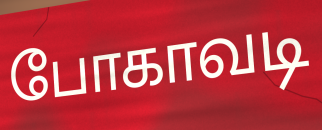
போகாவடி